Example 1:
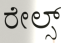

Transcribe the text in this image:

ರೇಲ್ಸ್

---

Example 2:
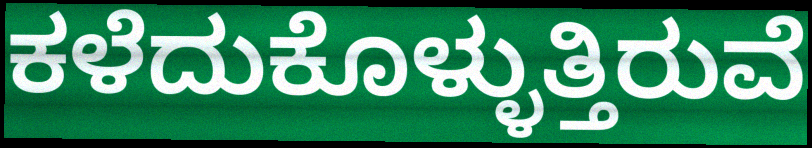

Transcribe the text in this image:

ಕಳೆದುಕೊಳ್ಳುತ್ತಿರುವೆ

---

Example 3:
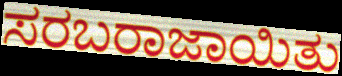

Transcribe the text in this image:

ಸರಬರಾಜಾಯಿತು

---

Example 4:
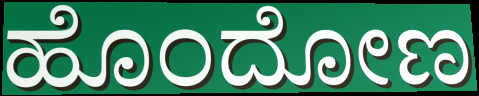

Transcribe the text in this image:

ಹೊಂದೋಣ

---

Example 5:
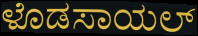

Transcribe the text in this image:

ಳೊಡಸಾಯಲ್